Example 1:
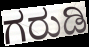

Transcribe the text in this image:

ಗರುಡಿ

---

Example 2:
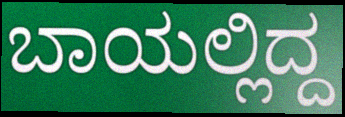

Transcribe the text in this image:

ಬಾಯಲ್ಲಿದ್ದ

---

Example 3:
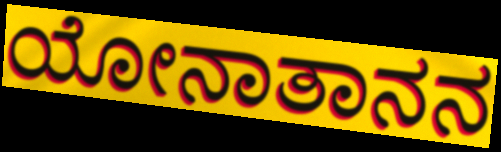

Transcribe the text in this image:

ಯೋನಾತಾನನ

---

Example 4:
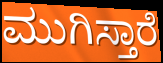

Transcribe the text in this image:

ಮುಗಿಸ್ತಾರೆ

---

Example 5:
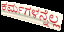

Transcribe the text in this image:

ಕರ್ಮಗಳನ್ನೆಲ್ಲ